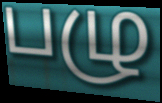
பழு